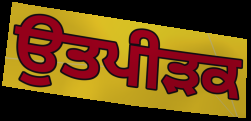
ਉਤਪੀੜਕ